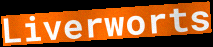
Liverworts